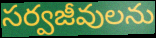
సర్వజీవులను